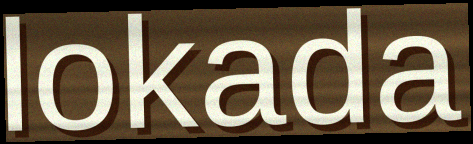
lokada